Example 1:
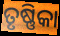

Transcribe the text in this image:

ତୃଷ୍ଣିକା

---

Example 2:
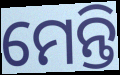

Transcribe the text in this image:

ମେନ୍ତି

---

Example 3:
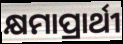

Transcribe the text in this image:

କ୍ଷମାପ୍ରାର୍ଥୀ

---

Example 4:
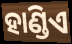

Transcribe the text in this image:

ହାଣ୍ଡିଏ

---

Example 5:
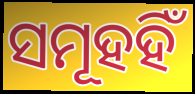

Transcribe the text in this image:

ସମୂହହିଁ